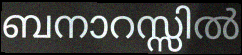
ബനാറസ്സിൽ